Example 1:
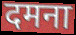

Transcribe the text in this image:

दमना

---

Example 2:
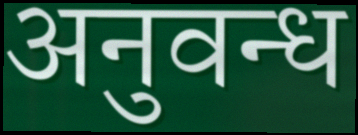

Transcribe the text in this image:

अनुवन्ध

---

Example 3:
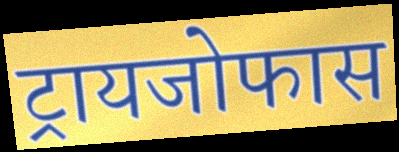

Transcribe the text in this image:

ट्रायजोफास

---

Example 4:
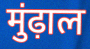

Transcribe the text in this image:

मुंढ़ाल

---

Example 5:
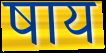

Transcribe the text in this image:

षाय